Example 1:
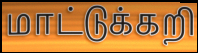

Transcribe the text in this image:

மாட்டுக்கறி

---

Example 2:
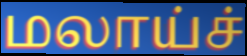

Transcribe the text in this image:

மலாய்ச்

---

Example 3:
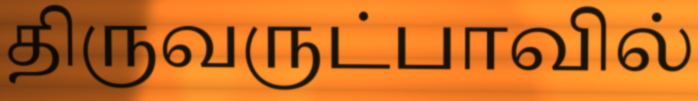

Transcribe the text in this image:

திருவருட்பாவில்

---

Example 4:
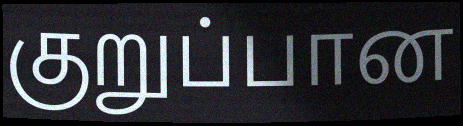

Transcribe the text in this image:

குறுப்பான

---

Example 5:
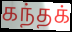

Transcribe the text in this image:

கந்தக்